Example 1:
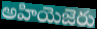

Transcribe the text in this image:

అహియెజెరు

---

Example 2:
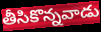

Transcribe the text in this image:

తీసికొన్నవాడు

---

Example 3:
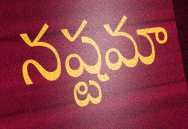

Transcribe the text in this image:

నష్టమా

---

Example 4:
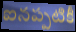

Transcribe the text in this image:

ఐనప్పటికీ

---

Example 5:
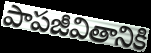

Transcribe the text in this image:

పాపజీవితానికి